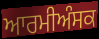
ਆਰਮੀਅੰਸਕ